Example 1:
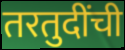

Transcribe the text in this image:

तरतुदींची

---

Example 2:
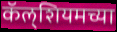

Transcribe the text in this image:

कॅल्शियमच्या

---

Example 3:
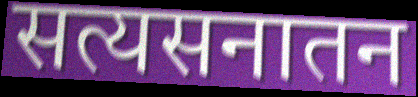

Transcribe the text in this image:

सत्यसनातन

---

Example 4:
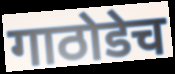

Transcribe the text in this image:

गाठोडेच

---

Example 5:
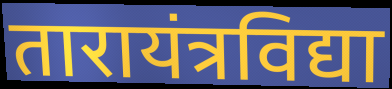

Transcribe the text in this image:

तारायंत्रविद्या